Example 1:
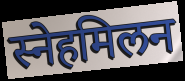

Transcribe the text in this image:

स्नेहमिलन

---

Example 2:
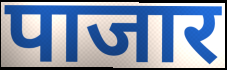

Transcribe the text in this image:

पाजार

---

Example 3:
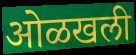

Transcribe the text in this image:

ओळखली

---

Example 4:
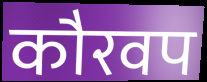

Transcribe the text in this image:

कौरवप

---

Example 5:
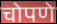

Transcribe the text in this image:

चोपणे